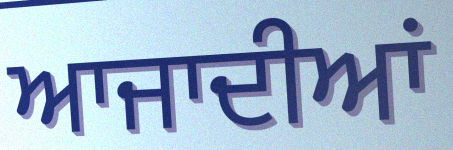
ਆਜਾਦੀਆਂ